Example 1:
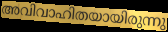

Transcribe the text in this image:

അവിവാഹിതയായിരുന്നു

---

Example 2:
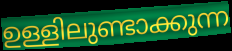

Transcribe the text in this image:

ഉള്ളിലുണ്ടാക്കുന്ന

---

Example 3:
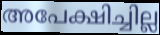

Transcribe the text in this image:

അപേക്ഷിച്ചില്ല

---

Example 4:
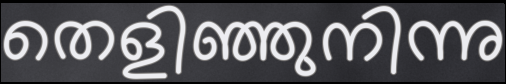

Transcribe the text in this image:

തെളിഞ്ഞുനിന്നു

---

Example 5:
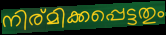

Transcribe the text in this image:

നിര്മിക്കപ്പെട്ടതും